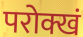
परोक्खं